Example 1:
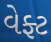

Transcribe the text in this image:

વેફ્ટ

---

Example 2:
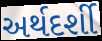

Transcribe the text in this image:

અર્થદર્શી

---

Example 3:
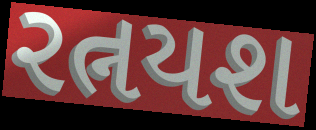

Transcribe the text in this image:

રત્નયશ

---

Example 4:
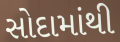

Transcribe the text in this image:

સોદામાંથી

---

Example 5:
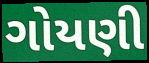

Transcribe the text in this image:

ગોયણી